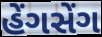
હેંગસેંગ